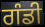
ਗੰਡੀ